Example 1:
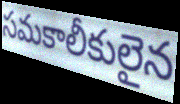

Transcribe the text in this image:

సమకాలీకులైన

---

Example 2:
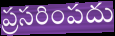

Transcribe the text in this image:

ప్రసరింపదు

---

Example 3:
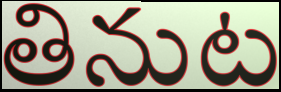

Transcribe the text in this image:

తినుట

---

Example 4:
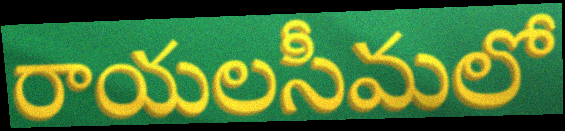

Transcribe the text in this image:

రాయలసీమలో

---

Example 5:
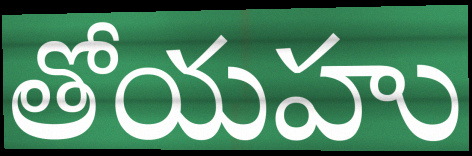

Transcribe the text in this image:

తోయహు